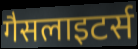
गैसलाइटर्स